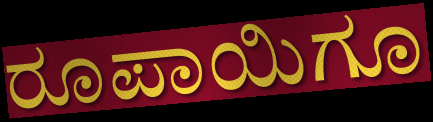
ರೂಪಾಯಿಗೂ